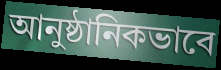
আনুষ্ঠানিকভাবে